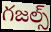
గజల్స్